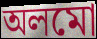
অলমো